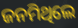
ଜନମିଥିଲେ